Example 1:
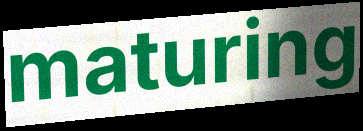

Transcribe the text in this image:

maturing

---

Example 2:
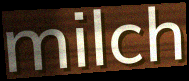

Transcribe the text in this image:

milch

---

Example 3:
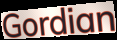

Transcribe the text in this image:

Gordian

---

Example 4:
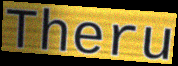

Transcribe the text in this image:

Theru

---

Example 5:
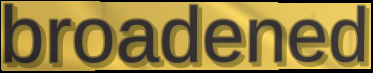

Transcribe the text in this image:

broadened